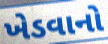
ખેડવાનો